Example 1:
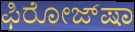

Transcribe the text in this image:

ಫಿರೋಜ್‌ಷಾ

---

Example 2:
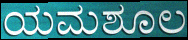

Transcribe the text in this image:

ಯಮಶೂಲ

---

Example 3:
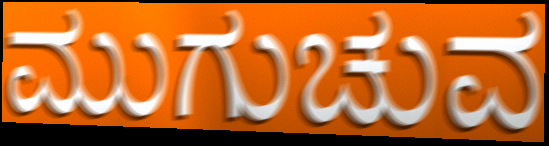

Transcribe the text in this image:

ಮುಗುಚುವ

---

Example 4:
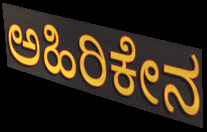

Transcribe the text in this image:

ಅಹಿರಿಕೇನ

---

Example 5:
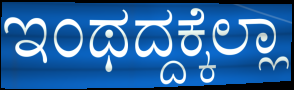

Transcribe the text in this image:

ಇಂಥದ್ದಕ್ಕೆಲ್ಲಾ